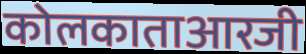
कोलकाताआरजी